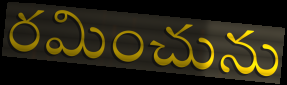
రమించును